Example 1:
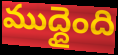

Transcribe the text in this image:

ముద్దైంది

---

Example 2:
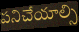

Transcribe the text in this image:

పనిచేయాల్సి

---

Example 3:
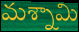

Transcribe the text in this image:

మశ్నామి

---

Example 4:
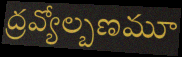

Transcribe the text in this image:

ద్రవ్యోల్బణమూ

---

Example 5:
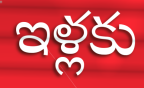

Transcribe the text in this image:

ఇళ్లకు